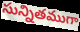
సున్నితముగా